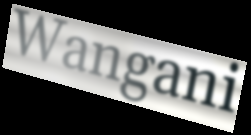
Wangani